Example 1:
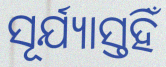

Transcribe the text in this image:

ସୂର୍ଯ୍ୟାସ୍ତହିଁ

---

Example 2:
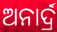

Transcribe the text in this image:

ଅନାର୍ଦ୍ର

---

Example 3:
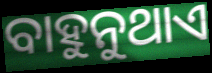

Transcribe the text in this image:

ବାହୁନୁଥାଏ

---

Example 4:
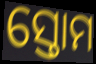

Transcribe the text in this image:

ସ୍ତୋମ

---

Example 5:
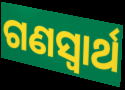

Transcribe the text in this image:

ଗଣସ୍ୱାର୍ଥ